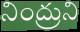
నింద్రుని